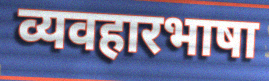
व्यवहारभाषा